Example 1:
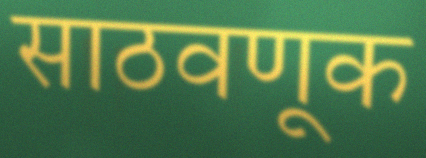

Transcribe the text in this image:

साठवणूक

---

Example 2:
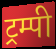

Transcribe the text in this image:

ट्रम्पी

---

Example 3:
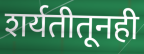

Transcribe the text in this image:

शर्यतीतूनही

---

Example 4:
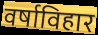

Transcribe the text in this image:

वर्षाविहार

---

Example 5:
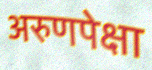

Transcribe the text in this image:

अरुणपेक्षा